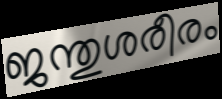
ജന്തുശരീരം